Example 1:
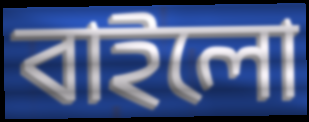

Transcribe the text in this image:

বাইলো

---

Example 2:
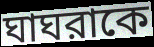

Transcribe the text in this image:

ঘাঘরাকে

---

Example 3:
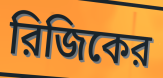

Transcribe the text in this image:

রিজিকের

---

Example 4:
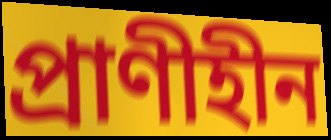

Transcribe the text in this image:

প্রাণীহীন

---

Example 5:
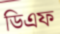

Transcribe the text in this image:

ডিএফ